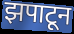
झपाटून